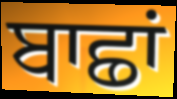
ਬਾਛਾਂ